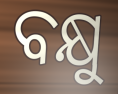
ବକ୍ଷୁ